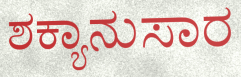
ಶಕ್ಯಾನುಸಾರ